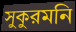
সুকুরমনি